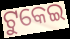
ଟୁକେଇ